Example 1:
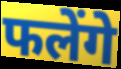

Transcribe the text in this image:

फलेंगे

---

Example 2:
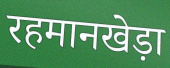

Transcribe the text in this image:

रहमानखेड़ा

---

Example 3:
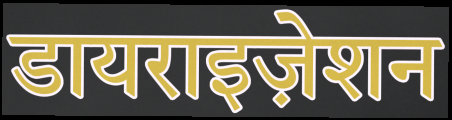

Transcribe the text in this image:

डायराइज़ेशन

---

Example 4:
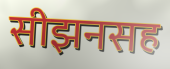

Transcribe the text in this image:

सीझनसह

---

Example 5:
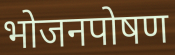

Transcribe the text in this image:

भोजनपोषण